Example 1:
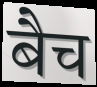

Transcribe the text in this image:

बैच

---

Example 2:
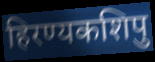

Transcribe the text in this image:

हिरण्यकशिपु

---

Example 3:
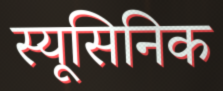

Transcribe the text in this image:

स्यूसिनिक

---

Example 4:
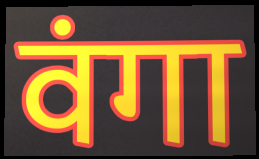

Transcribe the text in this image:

वंगा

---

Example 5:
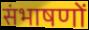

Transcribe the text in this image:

संभाषणों